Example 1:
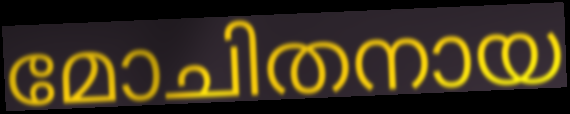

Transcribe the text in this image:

മോചിതനായ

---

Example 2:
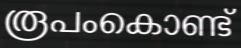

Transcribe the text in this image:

രൂപംകൊണ്ട്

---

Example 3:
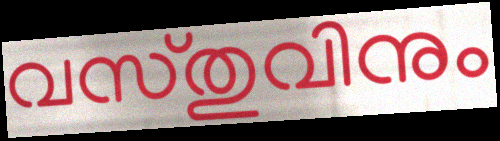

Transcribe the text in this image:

വസ്തുവിനും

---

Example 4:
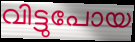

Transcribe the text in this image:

വിട്ടുപോയ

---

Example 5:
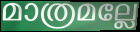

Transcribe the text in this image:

മാത്രമല്ലേ